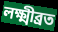
লক্ষ্মীব্রত